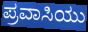
ಪ್ರವಾಸಿಯು